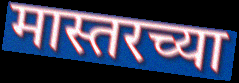
मास्तरच्या